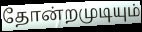
தோன்றமுடியும்